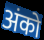
अंको